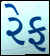
રેફ